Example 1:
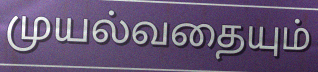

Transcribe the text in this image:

முயல்வதையும்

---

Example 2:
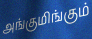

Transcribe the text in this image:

அங்குமிங்கும்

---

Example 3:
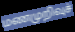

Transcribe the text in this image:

மணமுறிவுச்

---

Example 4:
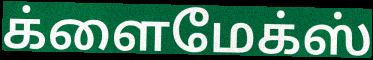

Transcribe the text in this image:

க்ளைமேக்ஸ்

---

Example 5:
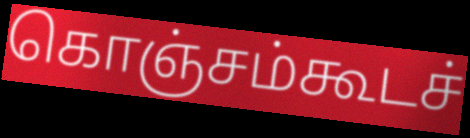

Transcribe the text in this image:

கொஞ்சம்கூடச்